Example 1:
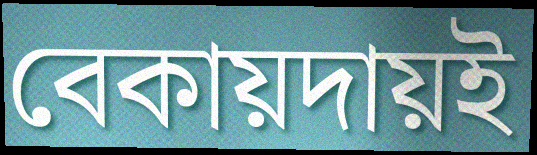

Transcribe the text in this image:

বেকায়দায়ই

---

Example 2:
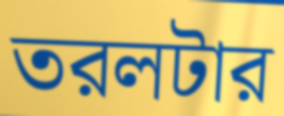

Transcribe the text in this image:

তরলটার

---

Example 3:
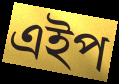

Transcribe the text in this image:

এইপ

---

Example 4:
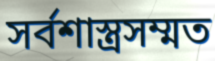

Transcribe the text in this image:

সর্বশাস্ত্রসম্মত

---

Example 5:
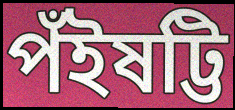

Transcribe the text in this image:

পঁইষট্টি